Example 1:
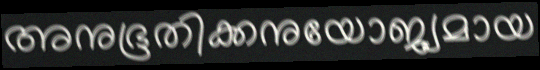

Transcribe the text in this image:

അനുഭൂതിക്കനുയോജ്യമായ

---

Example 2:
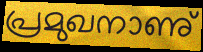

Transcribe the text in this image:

പ്രമുഖനാണു്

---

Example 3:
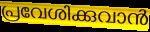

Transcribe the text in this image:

പ്രവേശിക്കുവാൻ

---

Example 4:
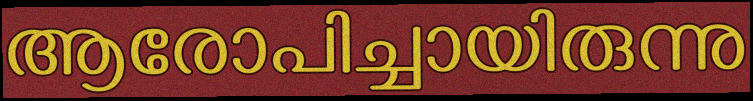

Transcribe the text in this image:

ആരോപിച്ചായിരുന്നു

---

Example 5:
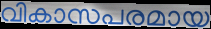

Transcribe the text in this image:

വികാസപരമായ